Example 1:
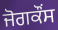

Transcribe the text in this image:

ਜੋਗਕੌਂਸ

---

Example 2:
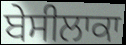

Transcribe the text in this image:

ਬੇਸੀਲਾਕਾ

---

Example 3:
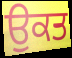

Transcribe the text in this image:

ਉੁਕਤ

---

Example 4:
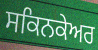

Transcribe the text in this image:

ਸਕਿਨਕੇਅਰ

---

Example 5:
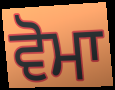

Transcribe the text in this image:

ਵੋਮਾ